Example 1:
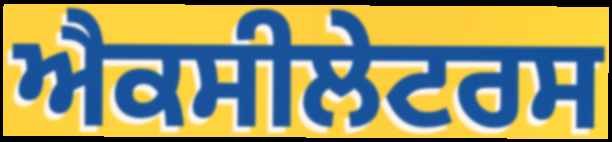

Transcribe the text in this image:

ਐਕਸੀਲੇਟਰਸ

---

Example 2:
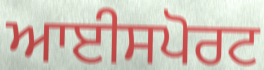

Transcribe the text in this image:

ਆਈਸਪੋਰਟ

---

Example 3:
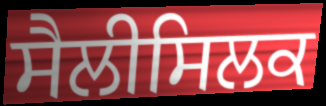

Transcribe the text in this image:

ਸੈਲੀਸਿਲਕ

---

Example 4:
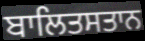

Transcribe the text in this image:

ਬਾਲਿਤਸਤਾਨ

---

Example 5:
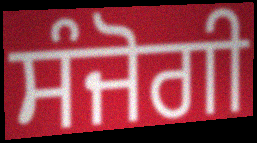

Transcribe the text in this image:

ਸੰਜੋਗੀ